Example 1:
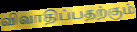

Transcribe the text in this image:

விவாதிப்பதற்கும்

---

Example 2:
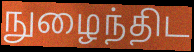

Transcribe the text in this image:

நுழைந்திட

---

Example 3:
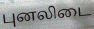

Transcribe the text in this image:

புனலிடை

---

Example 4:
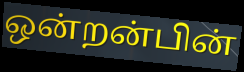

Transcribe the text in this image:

ஒன்றன்பின்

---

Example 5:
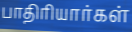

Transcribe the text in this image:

பாதிரியார்கள்